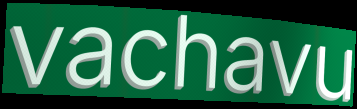
vachavu